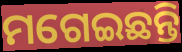
ମଗେଇଛନ୍ତି